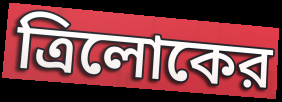
ত্রিলোকের